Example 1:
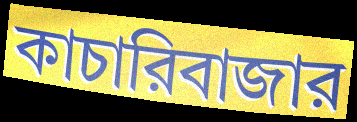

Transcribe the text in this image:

কাচারিবাজার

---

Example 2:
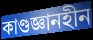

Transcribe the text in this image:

কাণ্ডজ্ঞানহীন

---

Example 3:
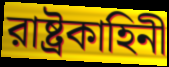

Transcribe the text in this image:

রাষ্ট্রকাহিনী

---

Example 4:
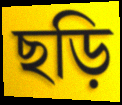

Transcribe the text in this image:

ছড়ি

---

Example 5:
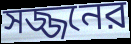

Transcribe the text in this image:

সজ্জনের